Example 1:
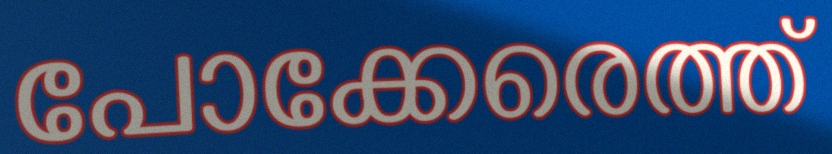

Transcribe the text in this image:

പോക്കേരെത്ത്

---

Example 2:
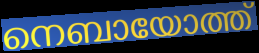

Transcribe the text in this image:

നെബായോത്ത്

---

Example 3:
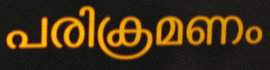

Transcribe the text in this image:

പരിക്രമണം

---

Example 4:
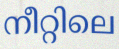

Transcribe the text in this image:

നീറ്റിലെ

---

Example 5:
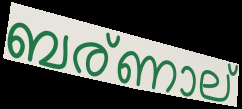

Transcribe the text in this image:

ബര്ണാല്